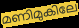
മണിമുകിലേ